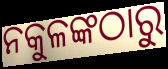
ନକୁଳଙ୍କଠାରୁ